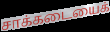
சாக்கடையைக்